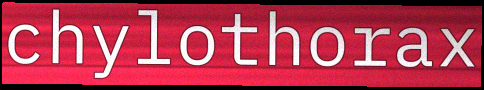
chylothorax